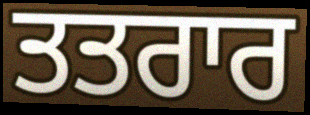
ਤਤਰਾਰ